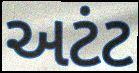
અટંટ